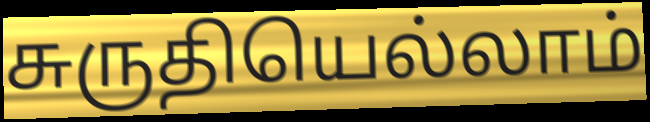
சுருதியெல்லாம்